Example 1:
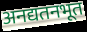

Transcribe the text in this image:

अनद्यतनभूत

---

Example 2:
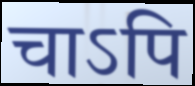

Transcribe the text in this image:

चाऽपि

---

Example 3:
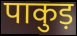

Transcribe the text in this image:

पाकुड़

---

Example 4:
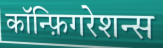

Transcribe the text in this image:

कॉन्फ़िगरेशन्स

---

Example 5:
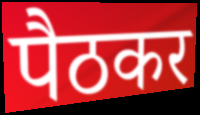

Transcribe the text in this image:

पैठकर